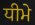
ਧੀਮੇ